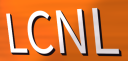
LCNL